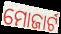
ମୋଜାର୍ଟ